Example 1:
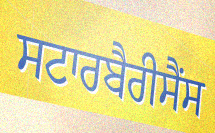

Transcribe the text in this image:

ਸਟਾਰਬੈਰੀਸੈਂਸ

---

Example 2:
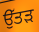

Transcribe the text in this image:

ਉੱਤੜ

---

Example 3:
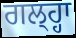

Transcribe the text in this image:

ਗਲ੍ਹ੍ਹਾ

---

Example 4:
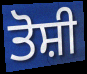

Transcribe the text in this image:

ਤੋਸ਼ੀ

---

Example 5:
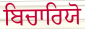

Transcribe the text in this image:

ਬਿਚਾਰਿਯੋ